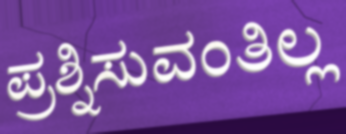
ಪ್ರಶ್ನಿಸುವಂತಿಲ್ಲ